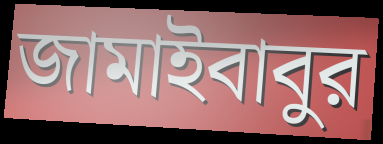
জামাইবাবুর